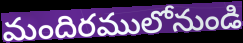
మందిరములోనుండి